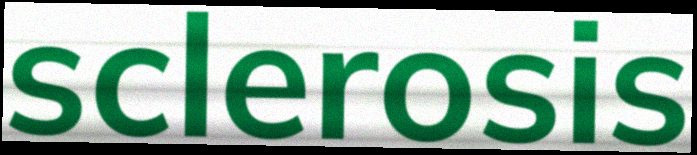
sclerosis